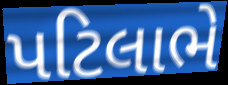
પટિલાભે